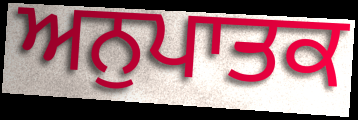
ਅਨੁਪਾਤਕ